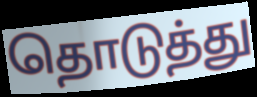
தொடுத்து